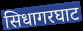
सिधागरघाट